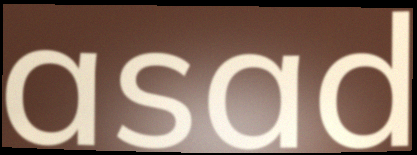
asad